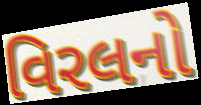
વિરલનો